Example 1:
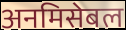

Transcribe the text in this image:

अनमिसेबल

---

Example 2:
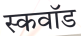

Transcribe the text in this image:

स्कवॉड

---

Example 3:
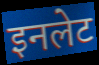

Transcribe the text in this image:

इनलेट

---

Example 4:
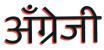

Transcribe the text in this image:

अँग्रेजी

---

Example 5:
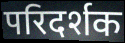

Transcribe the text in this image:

परिदर्शक